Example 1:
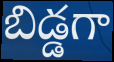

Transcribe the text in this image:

బిడ్డగా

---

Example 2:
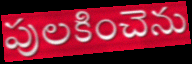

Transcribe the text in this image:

పులకించెను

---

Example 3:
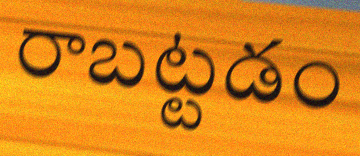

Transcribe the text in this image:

రాబట్టడం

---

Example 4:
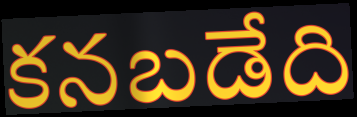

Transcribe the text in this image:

కనబడేది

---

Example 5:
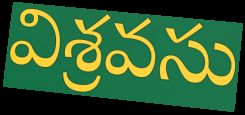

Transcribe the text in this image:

విశ్రవసు